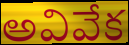
అవివేక